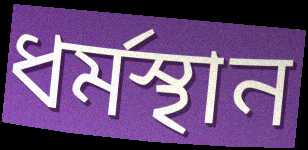
ধর্মস্থান